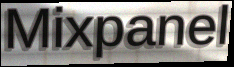
Mixpanel